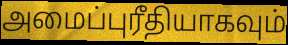
அமைப்புரீதியாகவும்